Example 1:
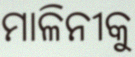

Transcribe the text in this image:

ମାଳିନୀକୁ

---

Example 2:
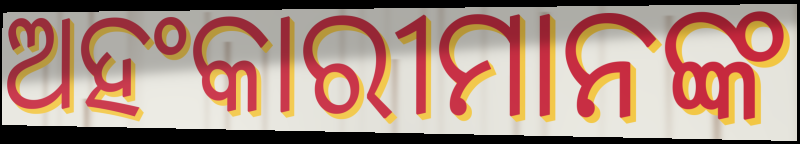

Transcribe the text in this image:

ଅହଂକାରୀମାନଙ୍କ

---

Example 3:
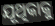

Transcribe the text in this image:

ଯୂଥିକାକୁ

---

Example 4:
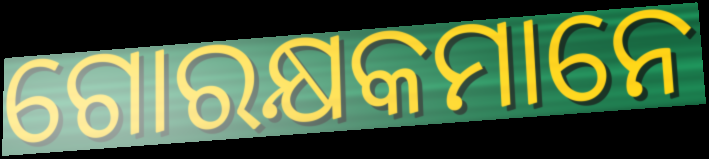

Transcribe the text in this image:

ଗୋରକ୍ଷକମାନେ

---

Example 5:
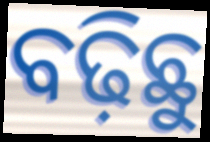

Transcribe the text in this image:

ବଢ଼ିଛୁ